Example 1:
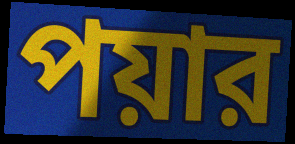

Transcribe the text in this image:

পয়ার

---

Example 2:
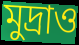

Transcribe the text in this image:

মুদ্রাও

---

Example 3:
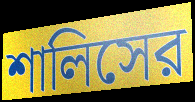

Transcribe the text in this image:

শালিসের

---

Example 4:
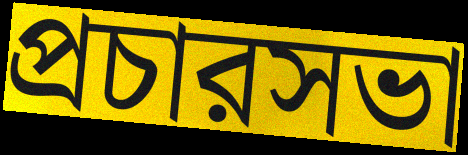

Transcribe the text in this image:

প্রচারসভা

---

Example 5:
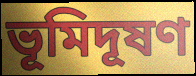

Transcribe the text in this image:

ভূমিদূষণ